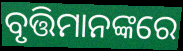
ବୃତ୍ତିମାନଙ୍କରେ